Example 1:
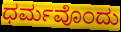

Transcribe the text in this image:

ಧರ್ಮವೊಂದು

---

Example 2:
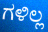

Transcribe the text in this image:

ಗಳಿಲ್ಲ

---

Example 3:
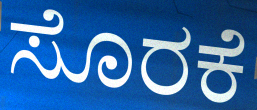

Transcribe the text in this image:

ಸೊರಕೆ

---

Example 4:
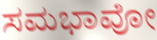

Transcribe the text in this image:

ಸಮಭಾವೋ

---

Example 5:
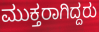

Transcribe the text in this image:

ಮುಕ್ತರಾಗಿದ್ದರು